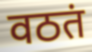
वठतं